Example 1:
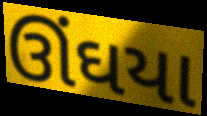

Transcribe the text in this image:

ઊંઘયા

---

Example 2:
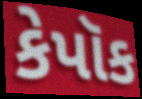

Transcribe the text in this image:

કેપૉક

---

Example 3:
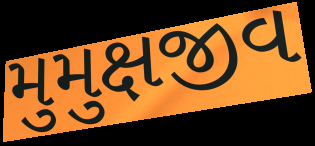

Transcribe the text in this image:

મુમુક્ષજીવ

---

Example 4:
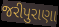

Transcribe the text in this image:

જરીપુરાણા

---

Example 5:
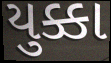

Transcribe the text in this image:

યુક્કા